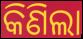
କିଣିଲା